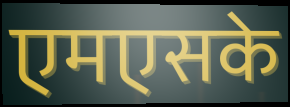
एमएसके